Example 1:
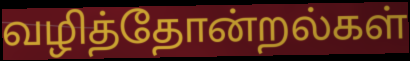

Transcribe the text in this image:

வழித்தோன்றல்கள்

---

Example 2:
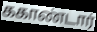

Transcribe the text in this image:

ககாண்டார்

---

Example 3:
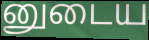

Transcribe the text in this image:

னுடைய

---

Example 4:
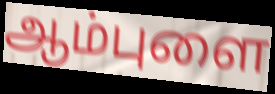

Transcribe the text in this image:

ஆம்புளை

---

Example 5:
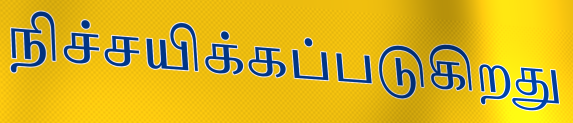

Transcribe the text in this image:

நிச்சயிக்கப்படுகிறது